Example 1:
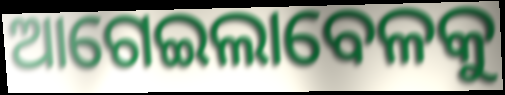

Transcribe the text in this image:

ଆଗେଇଲାବେଳକୁ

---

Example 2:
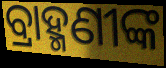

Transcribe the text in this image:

ବ୍ରାହ୍ମଣୀଙ୍କ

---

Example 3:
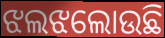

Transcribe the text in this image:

ଝଲଝଲୋଉଛି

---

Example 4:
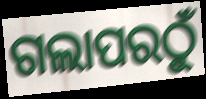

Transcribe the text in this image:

ଗଲାପରଠୁଁ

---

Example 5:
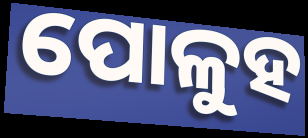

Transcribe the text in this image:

ପୋଳୁହ